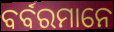
ବର୍ବରମାନେ